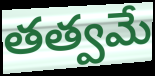
తత్వమే